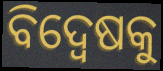
ବିଦ୍ବେଷକୁ